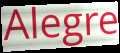
Alegre